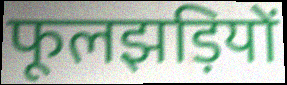
फूलझड़ियों